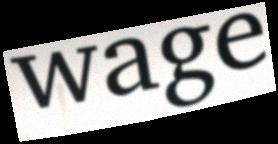
wage